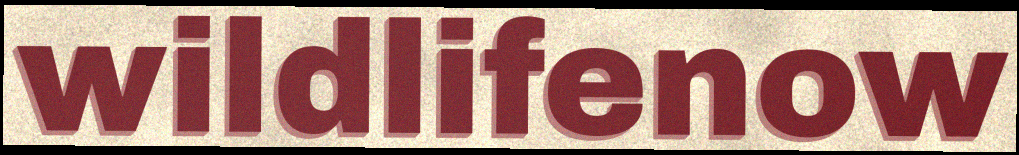
wildlifenow